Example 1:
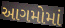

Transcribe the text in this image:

આગમોમાં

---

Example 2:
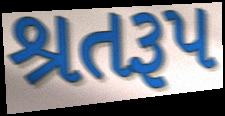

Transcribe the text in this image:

શ્રતરૂપ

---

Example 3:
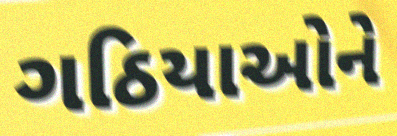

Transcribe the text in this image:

ગઠિયાઓને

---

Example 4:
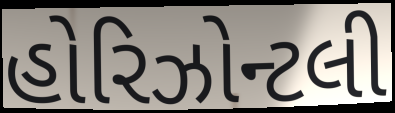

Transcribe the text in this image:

હોરિઝોન્ટલી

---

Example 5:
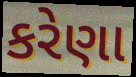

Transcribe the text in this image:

કરેણા